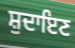
ਸ਼ੁਦਾਇਣ